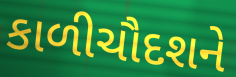
કાળીચૌદશને